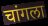
चांगला